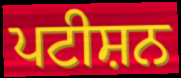
ਪਟੀਸ਼ਨ